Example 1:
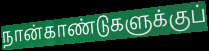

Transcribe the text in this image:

நான்காண்டுகளுக்குப்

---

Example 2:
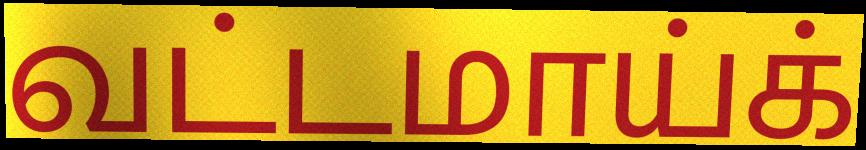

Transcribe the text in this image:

வட்டமாய்க்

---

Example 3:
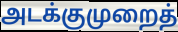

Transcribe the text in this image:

அடக்குமுறைத்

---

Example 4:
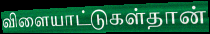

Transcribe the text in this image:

விளையாட்டுகள்தான்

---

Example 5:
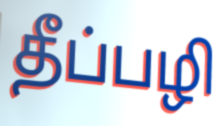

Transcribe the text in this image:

தீப்பழி